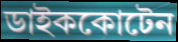
ডাইককোটেন